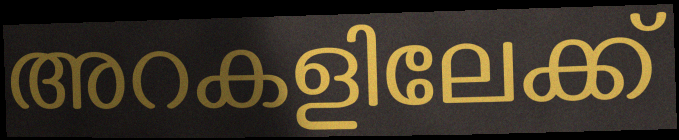
അറകളിലേക്ക്